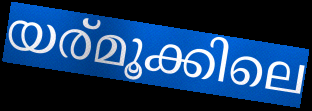
യര്മൂക്കിലെ